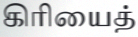
கிரியைத்